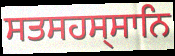
ਸਤਸਹਸ੍ਸਾਨਿ